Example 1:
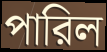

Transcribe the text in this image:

পারিল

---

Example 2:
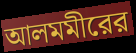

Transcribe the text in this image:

আলমমীরের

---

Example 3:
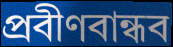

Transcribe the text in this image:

প্রবীণবান্ধব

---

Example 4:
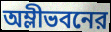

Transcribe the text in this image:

অম্লীভবনের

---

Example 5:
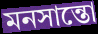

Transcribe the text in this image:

মনসান্তো